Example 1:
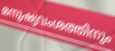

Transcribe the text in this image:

മനുഷ്യവംശത്തിനും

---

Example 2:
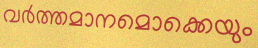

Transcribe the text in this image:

വർത്തമാനമൊക്കെയും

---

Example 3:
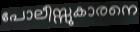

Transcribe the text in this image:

പോലീസ്സുകാരനെ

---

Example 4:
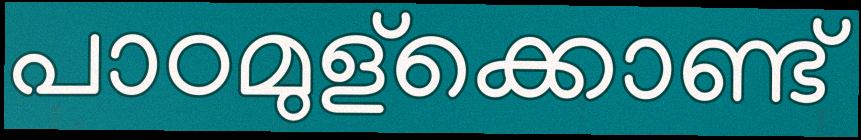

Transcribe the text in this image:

പാഠമുള്ക്കൊണ്ട്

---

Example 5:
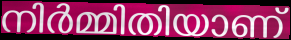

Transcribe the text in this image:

നിർമ്മിതിയാണ്